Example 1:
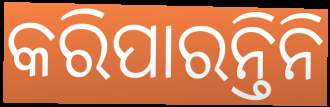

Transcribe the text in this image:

କରିପାରନ୍ତିନି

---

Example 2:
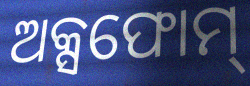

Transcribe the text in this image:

ଅକ୍ସଫୋମ୍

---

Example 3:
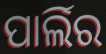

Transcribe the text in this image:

ପାର୍ଲିର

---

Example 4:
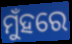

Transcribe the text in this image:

ମୁଁହରେ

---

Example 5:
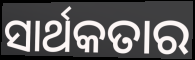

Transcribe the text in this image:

ସାର୍ଥକତାର